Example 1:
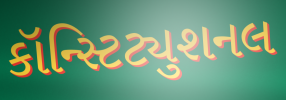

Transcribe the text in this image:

કૉન્સ્ટિટ્યુશનલ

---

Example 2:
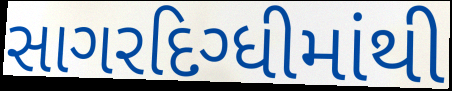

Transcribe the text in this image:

સાગરદિગ્ધીમાંથી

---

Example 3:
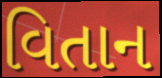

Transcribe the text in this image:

વિતાન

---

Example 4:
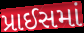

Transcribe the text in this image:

પ્રાઈસમાં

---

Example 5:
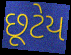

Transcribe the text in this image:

છૂટેય